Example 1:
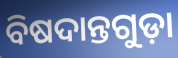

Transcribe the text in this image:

ବିଷଦାନ୍ତଗୁଡ଼ା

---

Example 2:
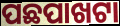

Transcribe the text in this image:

ପଛପାଖଟା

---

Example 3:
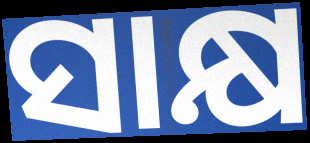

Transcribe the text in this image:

ସାକ୍ଷ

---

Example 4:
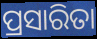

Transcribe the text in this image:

ପ୍ରସାରିତା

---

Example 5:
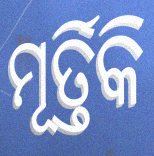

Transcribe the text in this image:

ମୂର୍ତ୍ତିକି